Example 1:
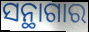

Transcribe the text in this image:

ସନ୍ଥାଗାର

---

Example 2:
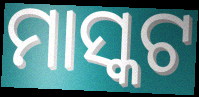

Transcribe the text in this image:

ମାସ୍କଟ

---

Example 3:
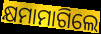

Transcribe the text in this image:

କ୍ଷମାମାଗିଲେ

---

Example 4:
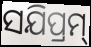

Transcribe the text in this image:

ସଯିପ୍ରମ୍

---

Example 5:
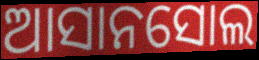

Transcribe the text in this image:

ଆସାନସୋଲ